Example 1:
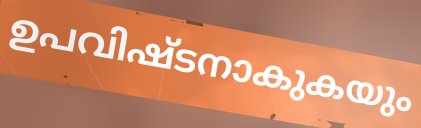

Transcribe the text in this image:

ഉപവിഷ്ടനാകുകയും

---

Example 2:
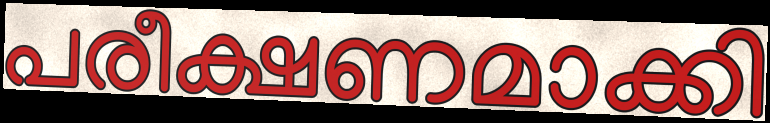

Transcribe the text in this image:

പരീക്ഷണമാക്കി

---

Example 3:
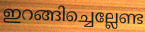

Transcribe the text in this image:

ഇറങ്ങിച്ചെല്ലേണ്ട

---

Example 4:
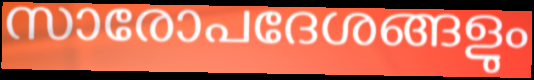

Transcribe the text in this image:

സാരോപദേശങ്ങളും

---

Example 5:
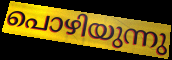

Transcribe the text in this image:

പൊഴിയുന്നു